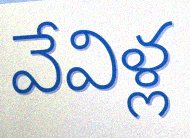
వేవిళ్ల